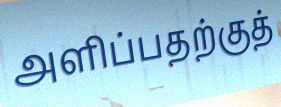
அளிப்பதற்குத்